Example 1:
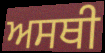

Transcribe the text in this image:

ਅਸਥੀ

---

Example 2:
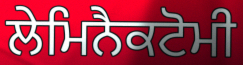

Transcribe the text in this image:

ਲੇਮਿਨੈਕਟੋਮੀ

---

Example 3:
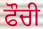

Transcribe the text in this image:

ਫੌਚੀ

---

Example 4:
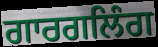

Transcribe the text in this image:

ਗਾਰਗਲਿੰਗ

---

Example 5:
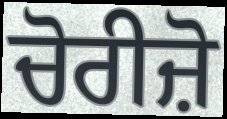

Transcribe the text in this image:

ਚੋਰੀਜ਼ੋ